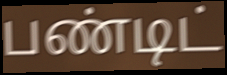
பண்டிட்